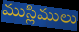
ముస్లిములు